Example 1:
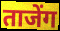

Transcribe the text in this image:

ताजेंग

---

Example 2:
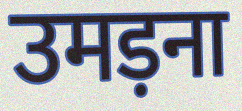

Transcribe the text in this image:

उमड़ना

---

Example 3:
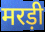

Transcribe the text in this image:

मरड़ी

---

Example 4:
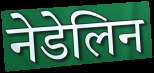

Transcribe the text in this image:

नेडेलिन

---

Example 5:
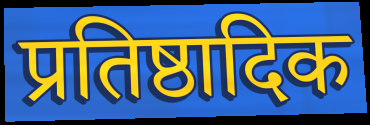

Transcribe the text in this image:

प्रतिष्ठादिक